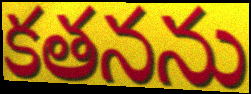
కతనను